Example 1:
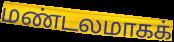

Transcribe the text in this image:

மண்டலமாகக்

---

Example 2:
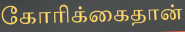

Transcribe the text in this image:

கோரிக்கைதான்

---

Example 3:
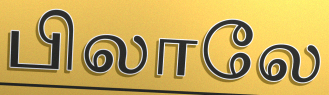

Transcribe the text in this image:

பிலாலே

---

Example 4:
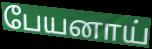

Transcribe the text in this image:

பேயனாய்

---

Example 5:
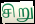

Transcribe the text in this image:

சிறு